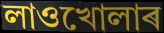
লাওখোলাৰ